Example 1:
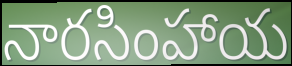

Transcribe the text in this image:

నారసింహాయ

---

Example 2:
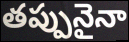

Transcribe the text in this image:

తప్పునైనా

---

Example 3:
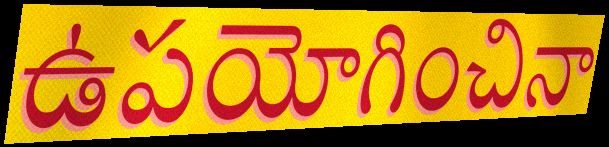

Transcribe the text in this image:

ఉపయోగించినా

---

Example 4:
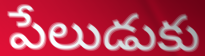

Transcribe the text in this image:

పేలుడుకు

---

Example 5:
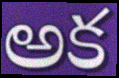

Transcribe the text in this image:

అక